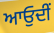
ਆਓੁਦੀਂ